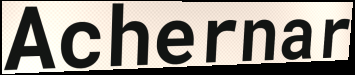
Achernar